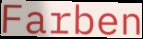
Farben